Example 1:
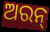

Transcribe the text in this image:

ଅରନ୍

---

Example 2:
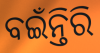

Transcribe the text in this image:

ବଇଁନ୍ତିରି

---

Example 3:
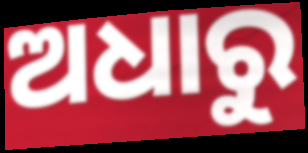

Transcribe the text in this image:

ଅଧାରୁ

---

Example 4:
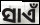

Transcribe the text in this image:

ସାଏଁ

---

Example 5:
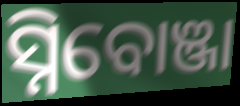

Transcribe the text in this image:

ସ୍ନିବୋଞ୍ଜା